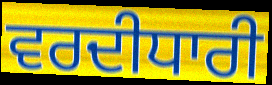
ਵਰਦੀਧਾਰੀ